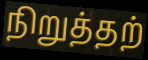
நிறுத்தற்